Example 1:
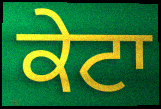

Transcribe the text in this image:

ਕੇਟਾ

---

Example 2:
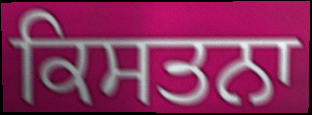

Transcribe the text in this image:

ਕਿਸਤਨਾ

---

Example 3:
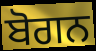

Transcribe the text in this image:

ਬੋਗਨ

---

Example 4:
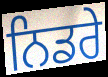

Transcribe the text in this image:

ਨਿਡਰੇ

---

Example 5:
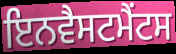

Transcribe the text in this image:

ਇਨਵੈਸਟਮੈਂਟਸ